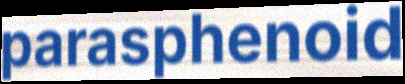
parasphenoid